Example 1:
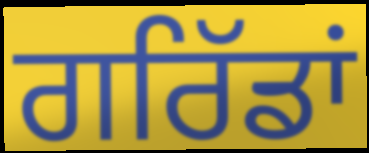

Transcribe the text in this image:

ਗਰਿੱਡਾਂ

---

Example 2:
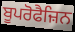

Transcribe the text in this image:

ਬੂਪਰੋਫੈਜ਼ਿਨ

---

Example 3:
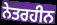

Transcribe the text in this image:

ਨੇਤਰਹੀਨ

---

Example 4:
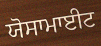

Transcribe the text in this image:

ਯੋਸਾਮਾਈਟ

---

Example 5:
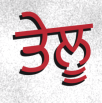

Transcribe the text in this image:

ਤੇਲੂ